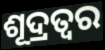
ଶୂଦ୍ରତ୍ଵର